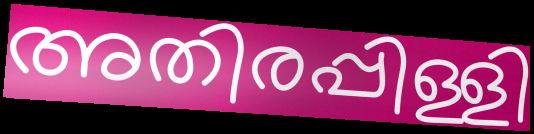
അതിരപ്പിള്ളി